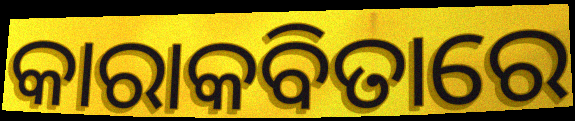
କାରାକବିତାରେ